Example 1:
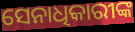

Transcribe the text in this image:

ସେନାଧିକାରୀଙ୍କ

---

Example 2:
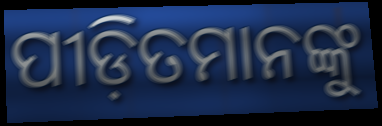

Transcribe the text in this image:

ପୀଡ଼ିତମାନଙ୍କୁ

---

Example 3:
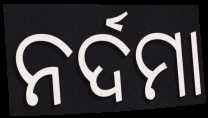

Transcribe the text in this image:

ନର୍ଦମା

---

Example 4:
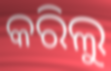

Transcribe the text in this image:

କରିଲୁ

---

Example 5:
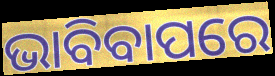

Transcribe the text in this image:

ଭାବିବାପରେ